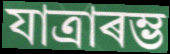
যাত্ৰাৰম্ভ